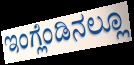
ಇಂಗ್ಲೆಂಡಿನಲ್ಲೂ